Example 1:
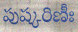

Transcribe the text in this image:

పుష్కరిణీః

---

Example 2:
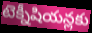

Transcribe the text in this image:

టెక్నీషియన్లకు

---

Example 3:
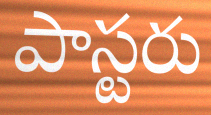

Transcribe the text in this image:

పాస్టరు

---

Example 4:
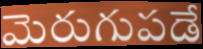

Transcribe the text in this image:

మెరుగుపడే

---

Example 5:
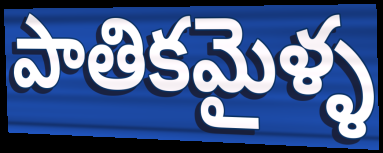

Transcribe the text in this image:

పాతికమైళ్ళ